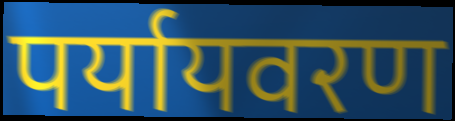
पर्यायवरण